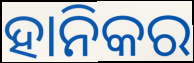
ହାନିକର